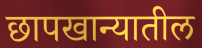
छापखान्यातील